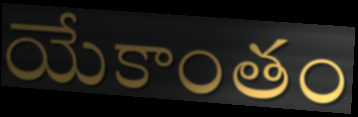
యేకాంతం